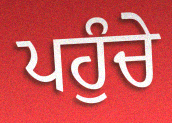
ਪਹੁੰਚੇ